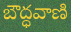
బౌద్ధవాణి